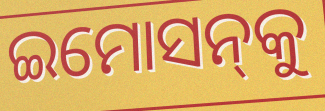
ଇମୋସନ୍‌କୁ